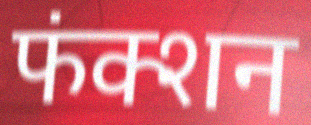
फंक्शन